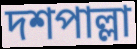
দশপাল্লা